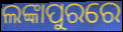
ଲଙ୍କାପୁରରେ